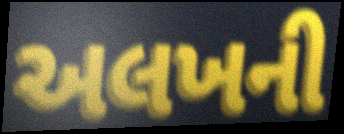
અલખની